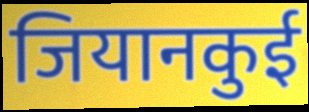
जियानकुई